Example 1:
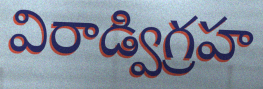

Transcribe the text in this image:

విరాడ్విగ్రహ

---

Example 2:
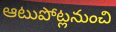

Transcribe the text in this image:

ఆటుపోట్లనుంచి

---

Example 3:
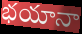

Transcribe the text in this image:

భయానా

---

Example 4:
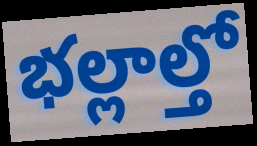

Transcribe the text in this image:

భల్లాల్తో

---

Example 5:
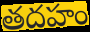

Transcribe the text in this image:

తదహం